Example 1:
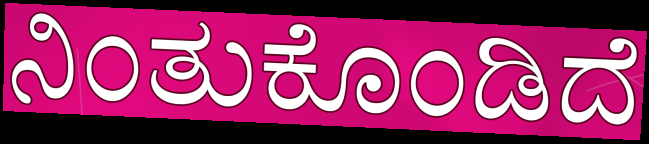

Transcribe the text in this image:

ನಿಂತುಕೊಂಡಿದೆ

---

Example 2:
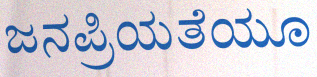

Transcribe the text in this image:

ಜನಪ್ರಿಯತೆಯೂ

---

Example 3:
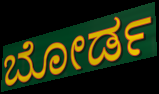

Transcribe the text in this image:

ಬೋರ್ಡ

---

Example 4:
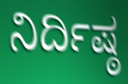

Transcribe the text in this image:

ನಿರ್ದಿಷ್ಠ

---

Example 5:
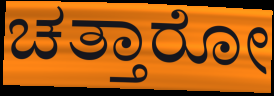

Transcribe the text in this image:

ಚತ್ತಾರೋ